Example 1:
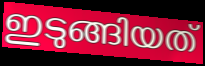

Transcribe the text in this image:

ഇടുങ്ങിയത്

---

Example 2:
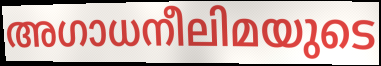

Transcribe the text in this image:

അഗാധനീലിമയുടെ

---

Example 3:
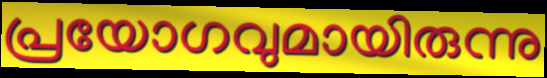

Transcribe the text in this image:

പ്രയോഗവുമായിരുന്നു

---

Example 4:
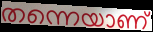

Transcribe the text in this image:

തന്നെയാണ്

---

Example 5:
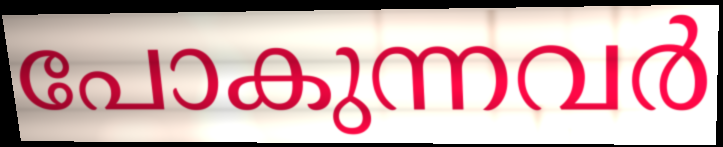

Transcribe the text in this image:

പോകുന്നവർ